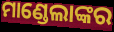
ମାଣ୍ଡେଲାଙ୍କର